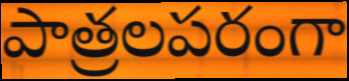
పాత్రలపరంగా